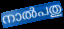
നാൽപതു